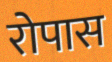
रोपास